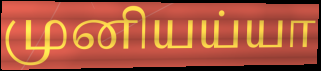
முனியய்யா